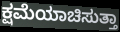
ಕ್ಷಮೆಯಾಚಿಸುತ್ತಾ